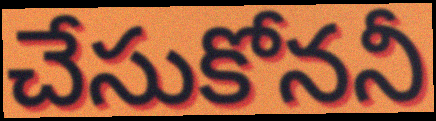
చేసుకోననీ